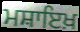
ਮਸ਼ਾਇਖ਼